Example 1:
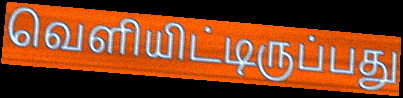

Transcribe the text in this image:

வெளியிட்டிருப்பது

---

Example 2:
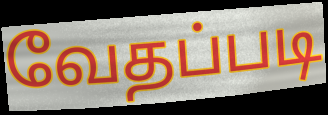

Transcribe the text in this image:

வேதப்படி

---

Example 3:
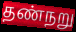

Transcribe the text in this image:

தண்நறு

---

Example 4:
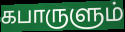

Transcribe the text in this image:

கபாருளும்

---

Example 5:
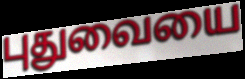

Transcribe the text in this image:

புதுவையை